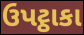
ઉપટ્ઠાકા